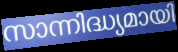
സാന്നിദ്ധ്യമായി